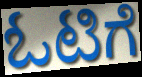
ಓಟಿಗೆ